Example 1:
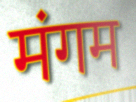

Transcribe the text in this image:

मंगम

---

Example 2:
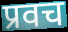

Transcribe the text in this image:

प्रवच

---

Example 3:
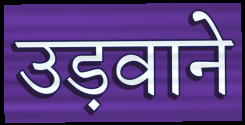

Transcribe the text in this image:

उड़वाने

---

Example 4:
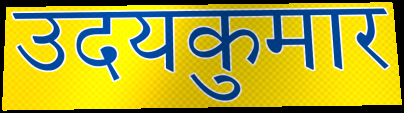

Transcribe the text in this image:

उदयकुमार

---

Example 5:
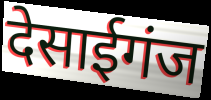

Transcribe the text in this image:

देसाईगंज